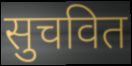
सुचवित